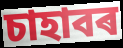
চাহাবৰ